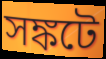
সঙ্কটে